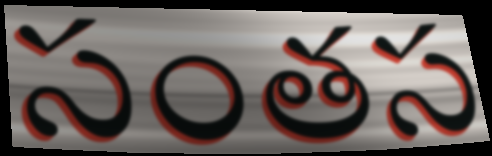
సంతస